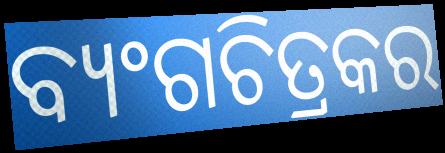
ବ୍ୟଂଗଚିତ୍ରକର